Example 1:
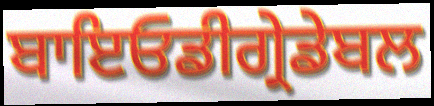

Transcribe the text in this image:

ਬਾਇਓਡੀਗ੍ਰੇਡੇਬਲ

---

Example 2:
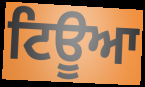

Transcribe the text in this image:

ਟਿਊਆ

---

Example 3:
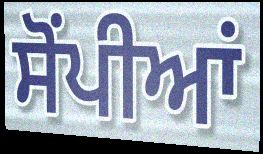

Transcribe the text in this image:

ਸੋਂਪੀਆਂ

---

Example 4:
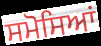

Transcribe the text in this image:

ਸਮੋਸਿਆਂ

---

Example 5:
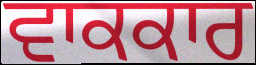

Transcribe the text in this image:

ਵਾਕਕਾਰ